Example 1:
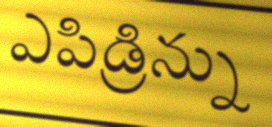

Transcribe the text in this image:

ఎపిడ్రిన్ను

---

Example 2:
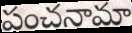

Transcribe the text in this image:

పంచనామా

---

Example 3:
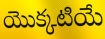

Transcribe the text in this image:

యొక్కటియే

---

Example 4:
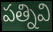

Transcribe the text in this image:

పత్నివి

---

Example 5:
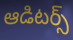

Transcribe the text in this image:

ఆడిటర్స్